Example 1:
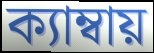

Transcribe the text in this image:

ক্যাম্বায়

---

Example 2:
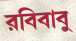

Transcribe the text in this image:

রবিবাবু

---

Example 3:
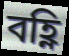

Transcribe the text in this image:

বহ্ণি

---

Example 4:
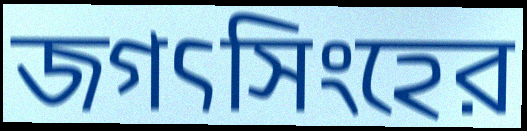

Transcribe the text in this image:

জগৎসিংহের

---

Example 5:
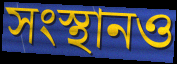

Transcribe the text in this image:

সংস্থানও